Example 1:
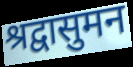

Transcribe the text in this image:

श्रद्वासुमन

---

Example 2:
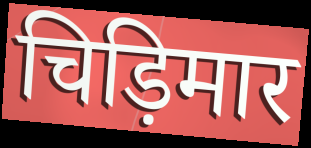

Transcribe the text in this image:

चिड़िमार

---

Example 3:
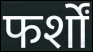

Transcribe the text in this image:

फर्शों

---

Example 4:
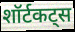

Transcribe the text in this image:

शॉर्टकट्स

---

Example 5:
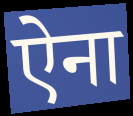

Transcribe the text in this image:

ऐना